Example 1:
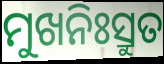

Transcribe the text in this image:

ମୁଖନିଃସ୍ରୁତ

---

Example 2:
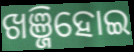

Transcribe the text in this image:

ଖଞ୍ଜିହୋଇ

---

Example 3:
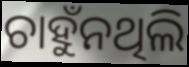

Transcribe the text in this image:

ଚାହୁଁନଥିଲି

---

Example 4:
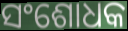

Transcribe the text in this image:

ସଂଶୋଧକ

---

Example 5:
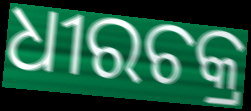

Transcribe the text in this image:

ଧୀରଚକ୍ର